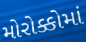
મોરોક્કોમાં